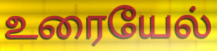
உரையேல்